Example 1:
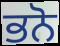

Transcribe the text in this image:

ਭਨੋ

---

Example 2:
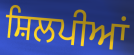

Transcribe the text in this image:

ਸ਼ਿਲਪੀਆਂ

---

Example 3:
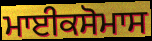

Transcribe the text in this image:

ਮਾਈਕਸੋਮਾਸ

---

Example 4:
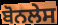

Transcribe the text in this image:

ਬੋਨਲੇਸ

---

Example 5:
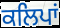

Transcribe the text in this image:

ਕਲਿਪਾਂ